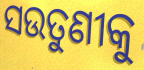
ସଉତୁଣୀକୁ